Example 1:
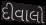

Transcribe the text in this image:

દીવાલો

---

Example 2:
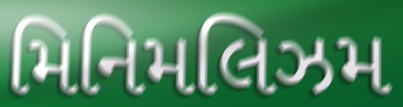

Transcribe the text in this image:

મિનિમલિઝમ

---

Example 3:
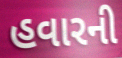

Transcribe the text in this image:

હવારની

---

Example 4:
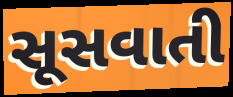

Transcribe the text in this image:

સૂસવાતી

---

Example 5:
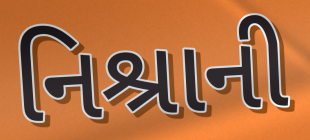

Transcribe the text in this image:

નિશ્રાની